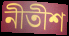
নীতীশ